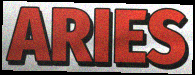
ARIES